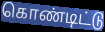
கொண்டிட்டு